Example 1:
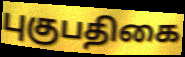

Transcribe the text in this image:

புகுபதிகை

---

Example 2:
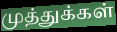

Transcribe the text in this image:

முத்துக்கள்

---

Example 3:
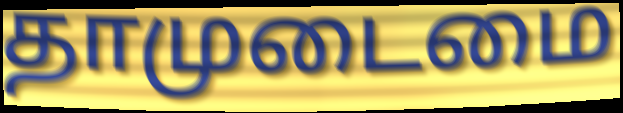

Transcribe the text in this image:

தாமுடைமை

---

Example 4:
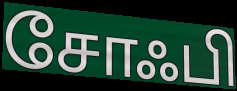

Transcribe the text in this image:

சோஃபி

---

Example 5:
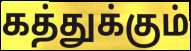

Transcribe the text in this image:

கத்துக்கும்